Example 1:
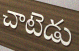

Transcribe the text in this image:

చాటెడు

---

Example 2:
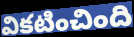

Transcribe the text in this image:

వికటించింది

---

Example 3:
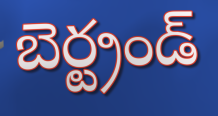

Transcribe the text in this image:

బెర్ట్రండ్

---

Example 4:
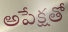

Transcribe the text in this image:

అపేక్షతో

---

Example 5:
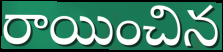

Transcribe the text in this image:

రాయించిన